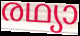
രഥ്യാ